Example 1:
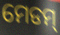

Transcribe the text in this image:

ମେଡମ୍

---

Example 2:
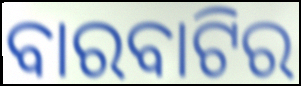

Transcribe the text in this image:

ବାରବାଟିର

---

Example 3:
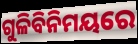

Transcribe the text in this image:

ଗୁଳିବିନିମୟରେ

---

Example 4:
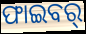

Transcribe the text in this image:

ଫାଇବର୍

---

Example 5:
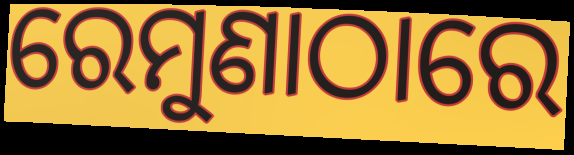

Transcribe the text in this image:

ରେମୁଣାଠାରେ